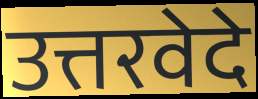
उत्तरवेदे